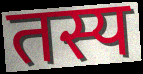
तस्य